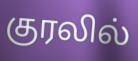
குரலில்